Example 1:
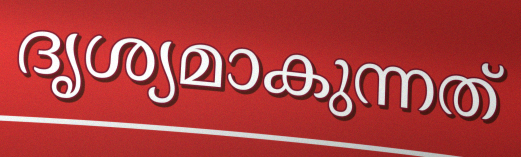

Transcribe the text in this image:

ദൃശ്യമാകുന്നത്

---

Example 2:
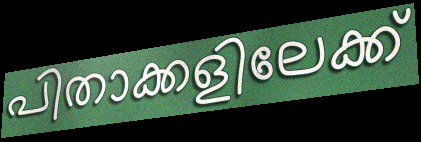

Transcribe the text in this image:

പിതാക്കളിലേക്ക്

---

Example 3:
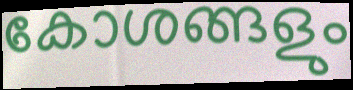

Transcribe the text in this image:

കോശങ്ങളും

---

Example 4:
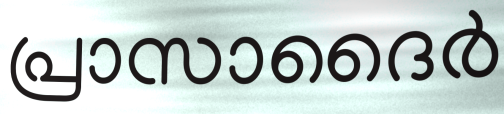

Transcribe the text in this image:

പ്രാസാദൈർ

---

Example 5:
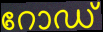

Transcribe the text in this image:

റോഡ്